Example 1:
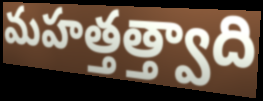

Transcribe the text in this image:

మహత్తత్త్వాది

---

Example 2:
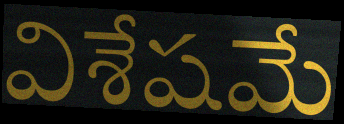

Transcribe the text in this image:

విశేషమే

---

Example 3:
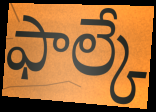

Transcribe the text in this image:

ఫాల్కే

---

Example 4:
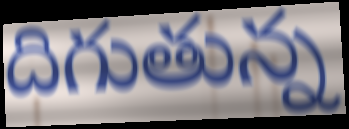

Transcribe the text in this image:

దిగుతున్న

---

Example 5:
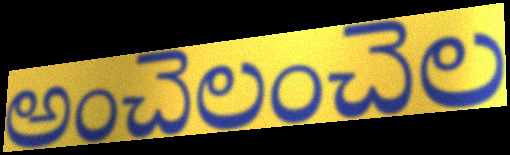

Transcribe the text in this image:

అంచెలంచెల